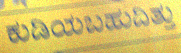
ಕುಡಿಯಬಹುದಿತ್ತು